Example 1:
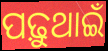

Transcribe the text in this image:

ପଢ଼ୁଥାଇଁ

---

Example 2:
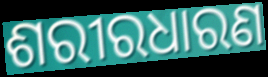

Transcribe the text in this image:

ଶରୀରଧାରଣ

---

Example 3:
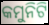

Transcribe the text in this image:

କମୁନିଟି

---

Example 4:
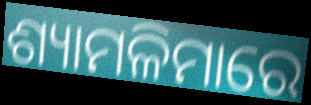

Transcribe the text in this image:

ଶ୍ୟାମଳିମାରେ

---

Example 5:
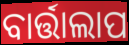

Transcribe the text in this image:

ବାର୍ତ୍ତାଲାପ